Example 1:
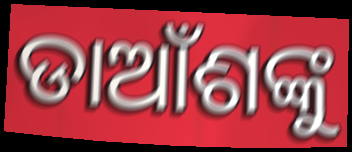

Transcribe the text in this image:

ଡାଆଁଶଙ୍କୁ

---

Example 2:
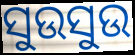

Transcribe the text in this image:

ସୁଉସୁଉ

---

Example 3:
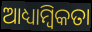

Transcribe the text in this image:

ଆଧ୍ୟାମ୍ବିକତା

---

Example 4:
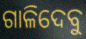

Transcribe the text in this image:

ଗାଳିଦେବୁ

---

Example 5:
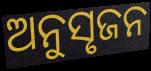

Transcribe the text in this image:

ଅନୁସୃଜନ